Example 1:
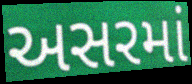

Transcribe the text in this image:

અસરમાં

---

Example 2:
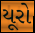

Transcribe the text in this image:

યૂરો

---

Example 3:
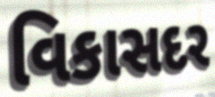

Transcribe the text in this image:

વિકાસદર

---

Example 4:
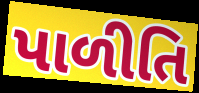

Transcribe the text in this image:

પાળીતિ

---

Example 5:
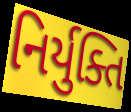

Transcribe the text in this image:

નિર્યુક્તિ